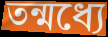
তন্মধ্যে